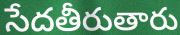
సేదతీరుతారు